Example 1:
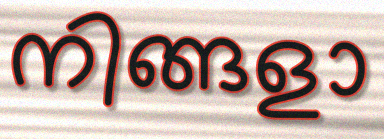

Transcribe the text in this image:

നിങ്ങളാ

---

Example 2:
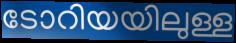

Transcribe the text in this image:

ടോറിയയിലുള്ള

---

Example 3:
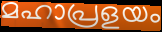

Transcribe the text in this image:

മഹാപ്രളയം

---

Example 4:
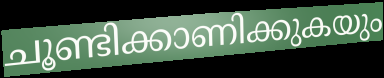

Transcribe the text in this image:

ചൂണ്ടിക്കാണിക്കുകയും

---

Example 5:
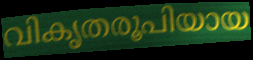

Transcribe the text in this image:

വികൃതരൂപിയായ